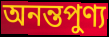
অনন্তপুণ্য